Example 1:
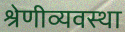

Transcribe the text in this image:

श्रेणीव्यवस्था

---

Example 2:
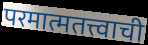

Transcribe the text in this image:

परमात्मतत्त्वाची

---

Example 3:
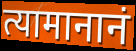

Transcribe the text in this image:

त्यामानानं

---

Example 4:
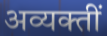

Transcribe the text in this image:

अव्यक्तीं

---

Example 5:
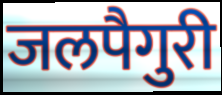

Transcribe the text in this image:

जलपैगुरी